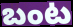
బంట